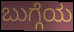
ಬುಗ್ಗೆಯ